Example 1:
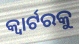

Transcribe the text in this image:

କ୍ୱାର୍ଟରକୁ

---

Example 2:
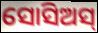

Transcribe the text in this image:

ସୋସିଅସ୍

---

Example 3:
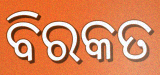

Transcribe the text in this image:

ବିରକତ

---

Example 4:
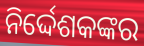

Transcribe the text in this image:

ନିର୍ଦ୍ଦେଶକଙ୍କର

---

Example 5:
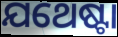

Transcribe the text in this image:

ଯଥେଷ୍ଟା